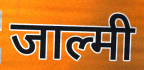
जाल्मी